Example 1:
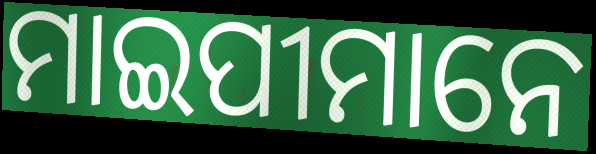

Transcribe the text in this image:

ମାଇପୀମାନେ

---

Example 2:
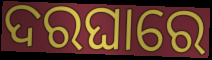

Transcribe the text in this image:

ଦରଘାରେ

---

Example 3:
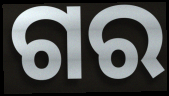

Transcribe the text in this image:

ଗର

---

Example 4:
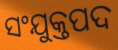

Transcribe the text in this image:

ସଂଯୁକ୍ତପଦ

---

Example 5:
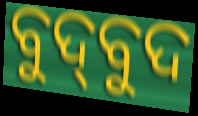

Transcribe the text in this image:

ବୁଦ୍‌ବୁଦ